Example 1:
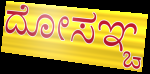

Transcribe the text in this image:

ದೋಸಞ್ಚ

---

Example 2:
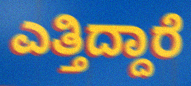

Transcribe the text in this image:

ಎತ್ತಿದ್ದಾರೆ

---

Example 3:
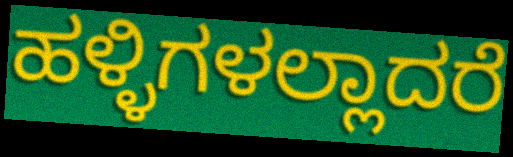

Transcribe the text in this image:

ಹಳ್ಳಿಗಳಲ್ಲಾದರೆ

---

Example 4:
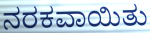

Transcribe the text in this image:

ನರಕವಾಯಿತು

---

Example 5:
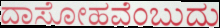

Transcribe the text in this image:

ದಾಸೋಹವೆಂಬುದು